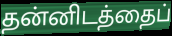
தன்னிடத்தைப்